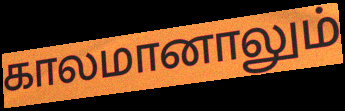
காலமானாலும்